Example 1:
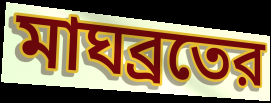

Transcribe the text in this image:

মাঘব্রতের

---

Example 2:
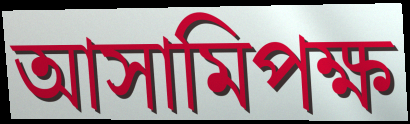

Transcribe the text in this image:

আসামিপক্ষ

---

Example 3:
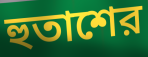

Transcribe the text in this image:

হুতাশের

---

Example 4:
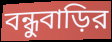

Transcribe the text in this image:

বন্ধুবাড়ির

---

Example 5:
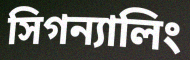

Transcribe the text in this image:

সিগন্যালিং